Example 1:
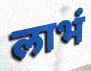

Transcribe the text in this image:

लाभं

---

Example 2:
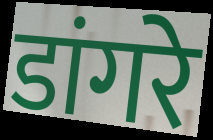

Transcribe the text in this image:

डांगरे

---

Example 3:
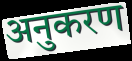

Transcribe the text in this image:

अनुकरण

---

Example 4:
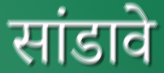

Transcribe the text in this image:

सांडावे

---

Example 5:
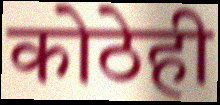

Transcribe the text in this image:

कोठेही